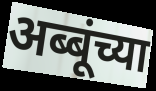
अब्बूंच्या